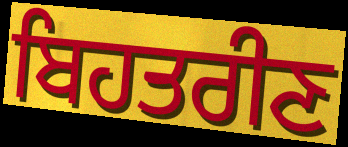
ਬਿਹਤਰੀਣ